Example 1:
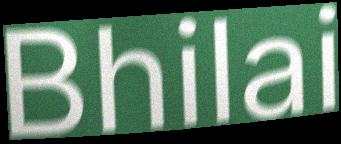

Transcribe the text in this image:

Bhilai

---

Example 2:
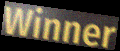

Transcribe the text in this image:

Winner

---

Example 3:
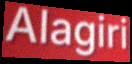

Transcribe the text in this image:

Alagiri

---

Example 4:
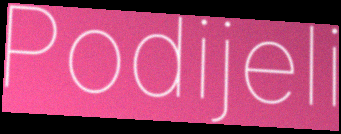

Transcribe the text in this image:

Podijeli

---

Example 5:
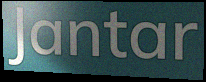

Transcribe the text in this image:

Jantar